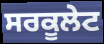
ਸਰਕੂਲੇਟ